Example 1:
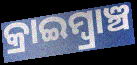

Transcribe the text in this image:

କ୍ରାଇମ୍ବ୍ରାଞ୍ଚ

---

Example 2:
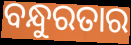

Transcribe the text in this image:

ବନ୍ଧୁରତାର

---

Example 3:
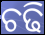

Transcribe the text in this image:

ଚଢି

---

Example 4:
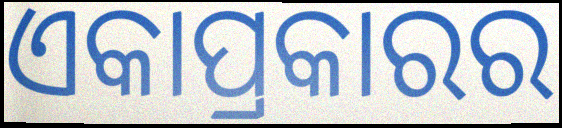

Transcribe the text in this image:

ଏକାପ୍ରକାରର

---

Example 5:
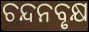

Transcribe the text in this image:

ଚନ୍ଦନବୃକ୍ଷ